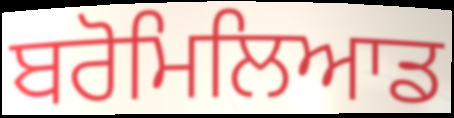
ਬਰੋਮਿਲਿਆਡ